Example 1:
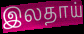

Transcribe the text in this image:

இலதாய்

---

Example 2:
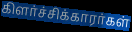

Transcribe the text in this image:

கிளர்ச்சிக்காரர்கள்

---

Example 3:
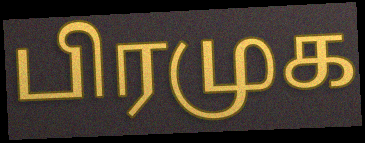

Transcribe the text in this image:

பிரமுக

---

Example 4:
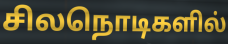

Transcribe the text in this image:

சிலநொடிகளில்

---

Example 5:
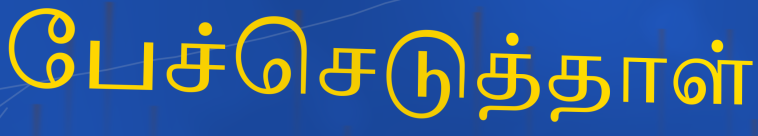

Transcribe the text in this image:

பேச்செடுத்தாள்